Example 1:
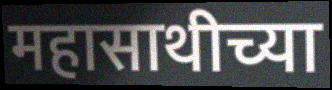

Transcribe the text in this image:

महासाथीच्या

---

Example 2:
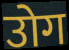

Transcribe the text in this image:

उोग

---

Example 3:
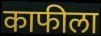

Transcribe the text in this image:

काफीला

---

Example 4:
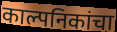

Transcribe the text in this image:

काल्पनिकांचा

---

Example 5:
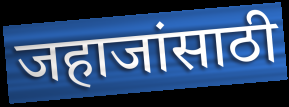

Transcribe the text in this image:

जहाजांसाठी